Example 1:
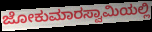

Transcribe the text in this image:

ಜೋಕುಮಾರಸ್ವಾಮಿಯಲ್ಲಿ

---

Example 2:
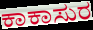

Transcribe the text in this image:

ಕಾಕಾಸುರ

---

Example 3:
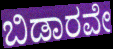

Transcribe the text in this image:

ಬಿಡಾರವೇ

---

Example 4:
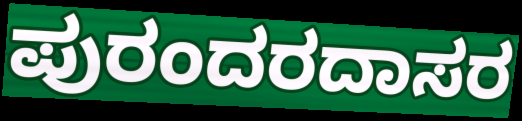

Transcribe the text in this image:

ಪುರಂದರದಾಸರ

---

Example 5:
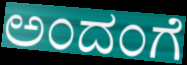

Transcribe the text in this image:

ಅಂದಂಗೆ